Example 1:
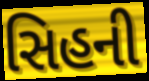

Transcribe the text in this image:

સિહની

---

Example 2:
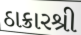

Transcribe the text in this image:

ઠાક્રારશ્રી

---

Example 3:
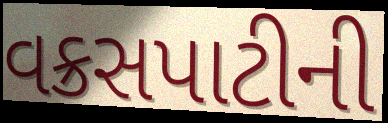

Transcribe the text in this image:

વક્રસપાટીની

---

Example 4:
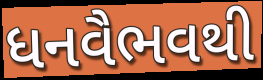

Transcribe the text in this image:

ધનવૈભવથી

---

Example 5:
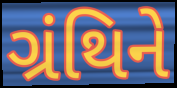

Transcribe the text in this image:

ગ્રંથિને